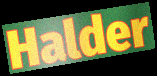
Halder